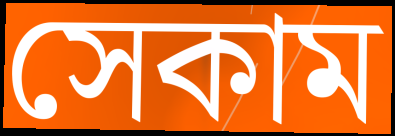
সেকাম